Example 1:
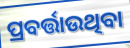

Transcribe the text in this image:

ପ୍ରବର୍ତ୍ତାଉଥିବା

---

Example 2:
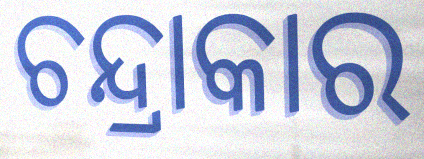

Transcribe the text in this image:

ଚନ୍ଦ୍ରାକାର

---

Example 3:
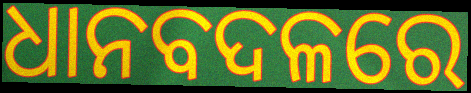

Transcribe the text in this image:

ଧାନବଦଳରେ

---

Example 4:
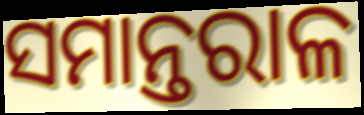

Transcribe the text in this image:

ସମାନ୍ତରାଳ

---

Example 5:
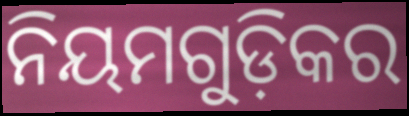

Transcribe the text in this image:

ନିୟମଗୁଡ଼ିକର